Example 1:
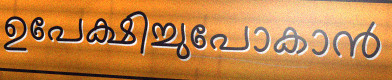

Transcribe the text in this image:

ഉപേക്ഷിച്ചുപോകാൻ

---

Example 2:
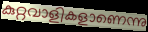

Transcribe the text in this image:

കുറ്റവാളികളാണെന്നു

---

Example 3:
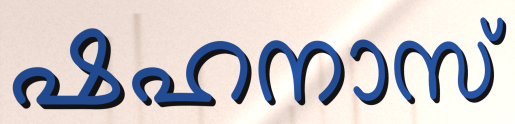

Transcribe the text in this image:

ഷഹനാസ്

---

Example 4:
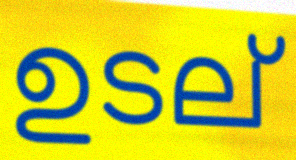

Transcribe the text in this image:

ഉടല്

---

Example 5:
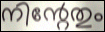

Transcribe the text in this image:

നിന്റേതും